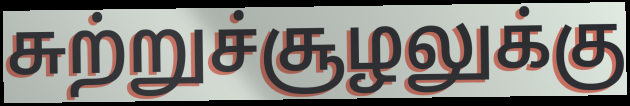
சுற்றுச்சூழலுக்கு